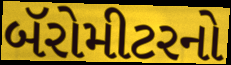
બૅરોમીટરનો